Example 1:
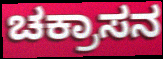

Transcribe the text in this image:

ಚಕ್ರಾಸನ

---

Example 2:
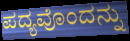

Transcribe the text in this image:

ಪದ್ಯವೊಂದನ್ನು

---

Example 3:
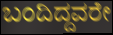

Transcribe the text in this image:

ಬಂದಿದ್ದವರೇ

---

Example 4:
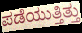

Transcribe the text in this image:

ಪಡೆಯುತ್ತಿತ್ತು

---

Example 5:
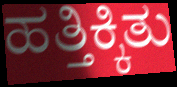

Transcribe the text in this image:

ಹತ್ತಿಕ್ಕಿತು